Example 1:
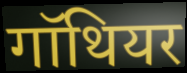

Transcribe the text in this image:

गॉथियर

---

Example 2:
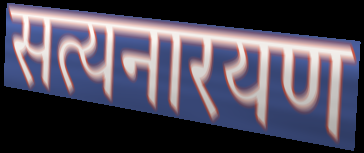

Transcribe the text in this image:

सत्यनारयण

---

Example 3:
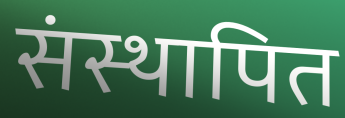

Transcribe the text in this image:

संस्थापित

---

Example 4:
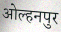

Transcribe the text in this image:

ओल्हनपुर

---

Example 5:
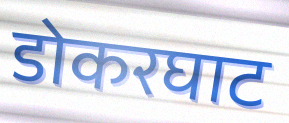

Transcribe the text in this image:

डोकरघाट